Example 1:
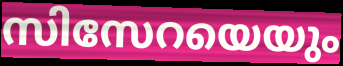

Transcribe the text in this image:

സിസേറയെയും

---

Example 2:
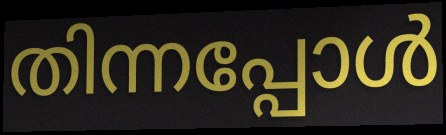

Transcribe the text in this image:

തിന്നപ്പോൾ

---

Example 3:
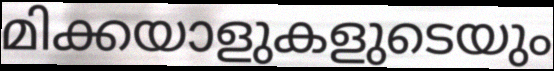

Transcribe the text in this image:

മിക്കയാളുകളുടെയും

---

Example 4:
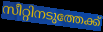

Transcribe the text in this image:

സീറ്റിനടുത്തേക്ക്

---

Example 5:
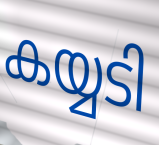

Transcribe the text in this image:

കയ്യടി